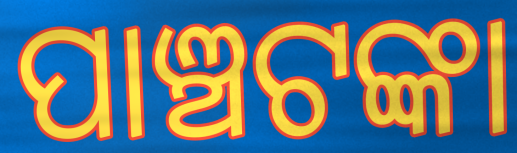
ପାଞ୍ଚଟଙ୍କା